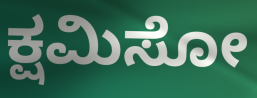
ಕ್ಷಮಿಸೋ